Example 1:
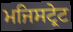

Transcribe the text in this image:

ਮਜਿਸਟ੍ਰੇਟ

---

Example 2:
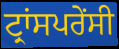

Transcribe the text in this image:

ਟ੍ਰਾਂਸਪਰੇਂਸੀ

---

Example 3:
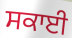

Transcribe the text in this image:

ਸਕਾਈ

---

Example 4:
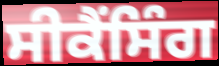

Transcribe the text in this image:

ਸੀਕੈਂਸਿੰਗ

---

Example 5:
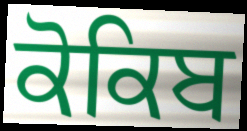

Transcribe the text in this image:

ਕੋਕਿਬ